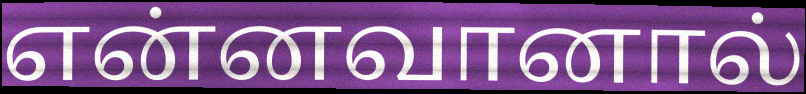
என்னவானால்